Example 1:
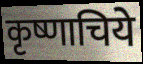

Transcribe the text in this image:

कृष्णाचिये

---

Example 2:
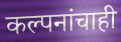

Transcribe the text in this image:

कल्पनांचाही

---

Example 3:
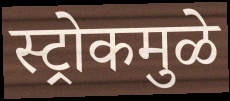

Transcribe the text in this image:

स्ट्रोकमुळे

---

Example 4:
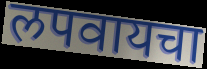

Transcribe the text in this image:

लपवायचा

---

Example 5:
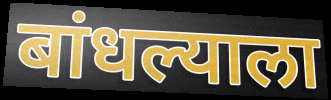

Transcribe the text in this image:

बांधल्याला